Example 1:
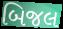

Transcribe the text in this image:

બિજલ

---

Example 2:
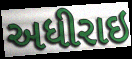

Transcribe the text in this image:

અધીરાઇ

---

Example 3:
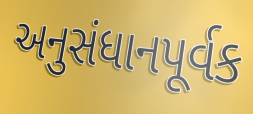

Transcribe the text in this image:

અનુસંધાનપૂર્વક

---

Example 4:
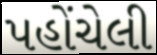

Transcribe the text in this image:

પહોંચેલી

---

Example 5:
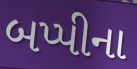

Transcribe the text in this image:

બપ્પીના